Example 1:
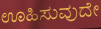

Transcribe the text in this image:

ಊಹಿಸುವುದೇ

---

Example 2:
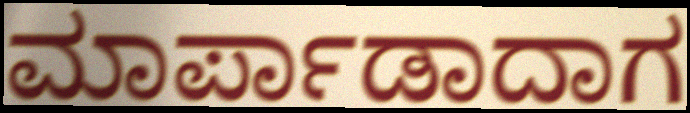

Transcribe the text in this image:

ಮಾರ್ಪಾಡಾದಾಗ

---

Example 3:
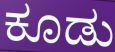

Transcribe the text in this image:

ಕೂಡು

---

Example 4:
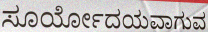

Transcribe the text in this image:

ಸೂರ್ಯೋದಯವಾಗುವ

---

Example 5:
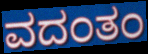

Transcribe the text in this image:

ವದಂತಂ